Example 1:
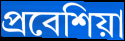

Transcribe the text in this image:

প্রবেশিয়া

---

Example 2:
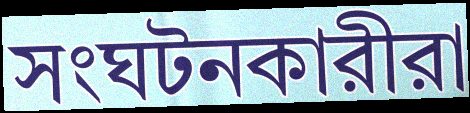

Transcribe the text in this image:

সংঘটনকারীরা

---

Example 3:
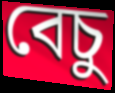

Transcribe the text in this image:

বেচু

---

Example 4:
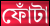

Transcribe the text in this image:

ফোঁটা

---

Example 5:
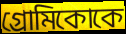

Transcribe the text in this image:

গ্রোমিকোকে